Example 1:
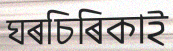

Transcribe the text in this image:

ঘৰচিৰিকাই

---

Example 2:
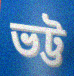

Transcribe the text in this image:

ভট্ট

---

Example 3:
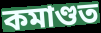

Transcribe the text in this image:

কমাণ্ডত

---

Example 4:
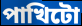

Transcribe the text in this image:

পাখিটো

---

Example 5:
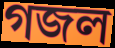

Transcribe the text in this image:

গজল